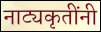
नाट्यकृतींनी